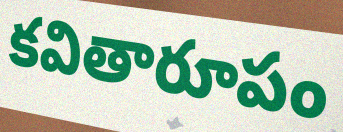
కవితారూపం